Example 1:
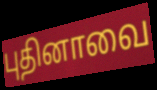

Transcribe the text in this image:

புதினாவை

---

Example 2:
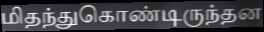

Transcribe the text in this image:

மிதந்துகொண்டிருந்தன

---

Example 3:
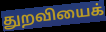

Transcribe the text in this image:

துறவியைக்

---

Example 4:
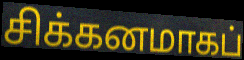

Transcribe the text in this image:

சிக்கனமாகப்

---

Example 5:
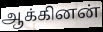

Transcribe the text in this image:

ஆக்கினன்